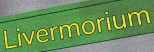
Livermorium